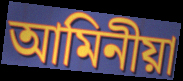
আমিনীয়া